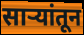
साऱ्यांतून